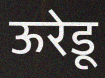
ऊरेडू